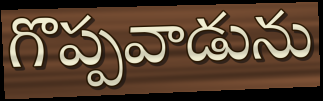
గొప్పవాడును